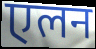
एलन